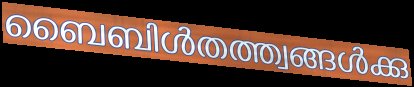
ബൈബിൾതത്ത്വങ്ങൾക്കു